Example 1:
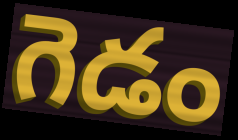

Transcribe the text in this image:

గెడం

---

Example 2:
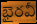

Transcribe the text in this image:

భైరవీ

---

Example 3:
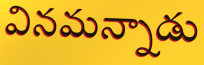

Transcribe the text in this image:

వినమన్నాడు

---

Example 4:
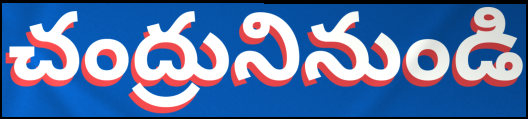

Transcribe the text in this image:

చంద్రునినుండి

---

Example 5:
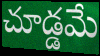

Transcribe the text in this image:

చూడ్డమే